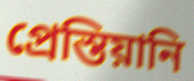
প্রেস্তিয়ানি